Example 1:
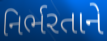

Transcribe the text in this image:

નિર્ભરતાને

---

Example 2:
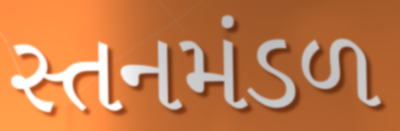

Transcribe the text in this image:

સ્તનમંડળ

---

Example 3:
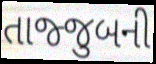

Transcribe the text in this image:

તાજ્જુબની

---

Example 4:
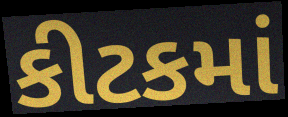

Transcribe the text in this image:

કીટકમાં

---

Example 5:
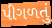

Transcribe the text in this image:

પીગળતું